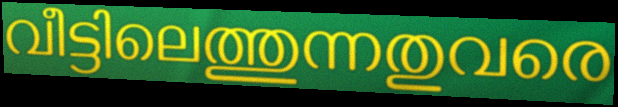
വീട്ടിലെത്തുന്നതുവരെ